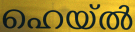
ഹെയ്ൽ